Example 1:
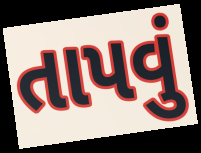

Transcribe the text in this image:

તાપવું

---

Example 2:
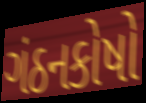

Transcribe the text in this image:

ગંઠનકોષો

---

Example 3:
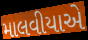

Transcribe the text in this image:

માલવીયાએ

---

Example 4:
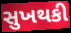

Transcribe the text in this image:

સુખથકી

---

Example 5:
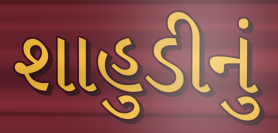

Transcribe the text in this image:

શાહુડીનું